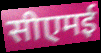
सीएमई